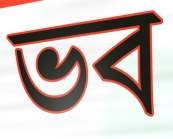
ভব